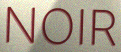
NOIR